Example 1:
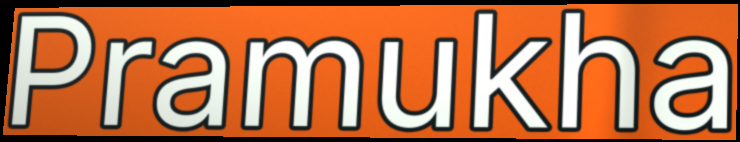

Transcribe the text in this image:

Pramukha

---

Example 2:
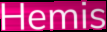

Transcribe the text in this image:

Hemis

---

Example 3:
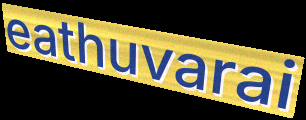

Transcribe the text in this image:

eathuvarai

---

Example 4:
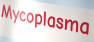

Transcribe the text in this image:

Mycoplasma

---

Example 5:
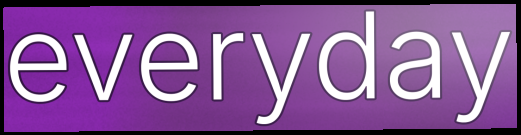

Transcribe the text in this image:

everyday